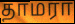
தாமரா